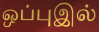
ஒப்புஇல்